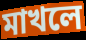
মাখলে